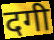
दगी